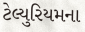
ટેલ્યુરિયમના